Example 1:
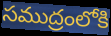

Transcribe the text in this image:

సముద్రంలోకి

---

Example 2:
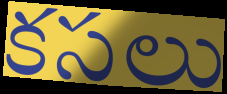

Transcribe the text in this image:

కసలు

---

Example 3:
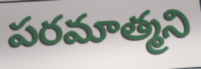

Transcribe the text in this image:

పరమాత్మని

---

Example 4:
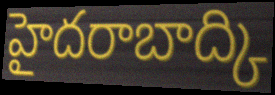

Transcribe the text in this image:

హైదరాబాద్కి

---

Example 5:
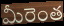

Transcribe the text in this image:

మీరెంత